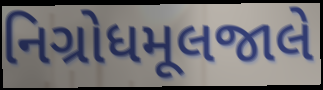
નિગ્રોધમૂલજાલે